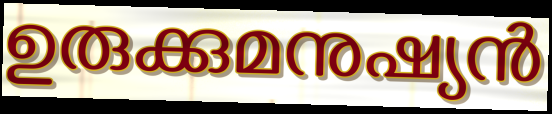
ഉരുക്കുമനുഷ്യൻ